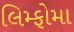
લિમ્ફોમા